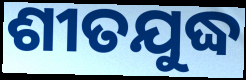
ଶୀତଯୁଦ୍ଧ